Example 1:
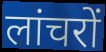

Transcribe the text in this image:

लांचरों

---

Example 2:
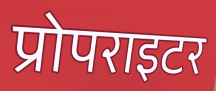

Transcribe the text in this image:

प्रोपराइटर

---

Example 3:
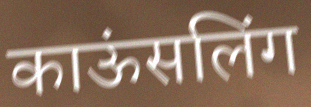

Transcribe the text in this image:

काऊंसलिंग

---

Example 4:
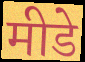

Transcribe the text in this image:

मीडे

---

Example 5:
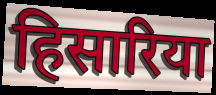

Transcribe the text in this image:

हिसारिया